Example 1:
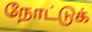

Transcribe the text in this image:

நோட்டுக்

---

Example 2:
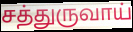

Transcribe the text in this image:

சத்துருவாய்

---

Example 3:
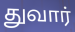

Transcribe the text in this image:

துவார்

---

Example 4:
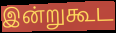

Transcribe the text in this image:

இன்றுகூட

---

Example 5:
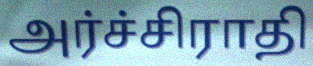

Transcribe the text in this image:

அர்ச்சிராதி